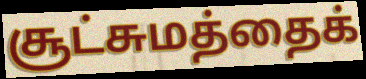
சூட்சுமத்தைக்